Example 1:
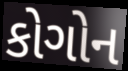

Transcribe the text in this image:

કોગોન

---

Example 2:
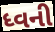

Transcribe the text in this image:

ધ્વની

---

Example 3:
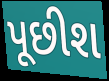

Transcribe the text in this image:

પૂછીશ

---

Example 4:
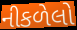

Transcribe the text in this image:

નીકળેલો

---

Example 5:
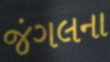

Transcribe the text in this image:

જંગલના